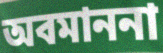
অবমাননা